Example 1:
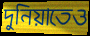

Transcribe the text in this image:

দুনিয়াতেও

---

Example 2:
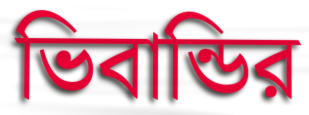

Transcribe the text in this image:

ভিবান্ডির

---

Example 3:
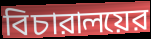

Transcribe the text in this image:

বিচারালয়ের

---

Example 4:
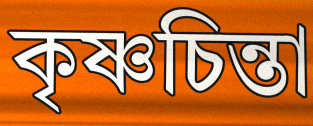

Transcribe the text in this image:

কৃষ্ণচিন্তা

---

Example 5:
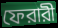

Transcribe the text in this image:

ফেরারী